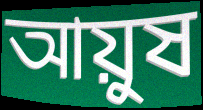
আয়ুষ